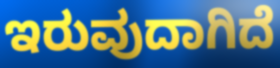
ಇರುವುದಾಗಿದೆ